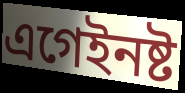
এগেইনষ্ট